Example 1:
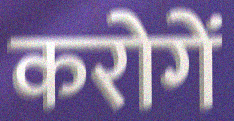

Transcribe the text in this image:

करोगें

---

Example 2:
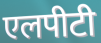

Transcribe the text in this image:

एलपीटी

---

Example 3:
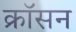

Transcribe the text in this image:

क्रॉसन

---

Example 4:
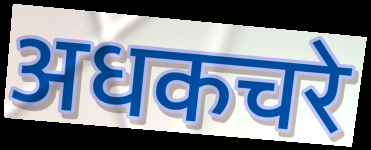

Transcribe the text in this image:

अधकचरे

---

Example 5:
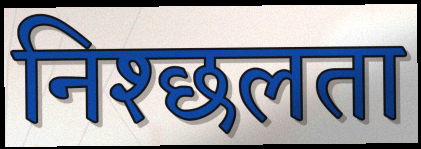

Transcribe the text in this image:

निश्छलता